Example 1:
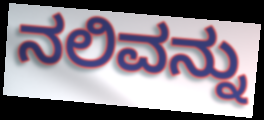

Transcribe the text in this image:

ನಲಿವನ್ನು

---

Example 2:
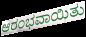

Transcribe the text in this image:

ಆರಂಭವಾಯಿತು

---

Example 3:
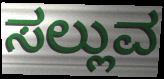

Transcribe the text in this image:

ಸಲ್ಲುವ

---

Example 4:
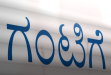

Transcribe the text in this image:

ಗಂಟಿಗೆ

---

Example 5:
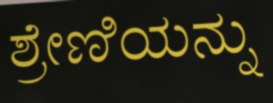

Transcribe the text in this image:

ಶ್ರೇಣಿಯನ್ನು